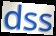
dss